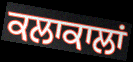
ਕਲਾਕਾਲਾਂ